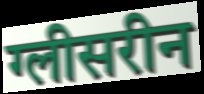
ग्लीसरीन